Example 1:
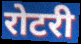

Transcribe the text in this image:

रोटरी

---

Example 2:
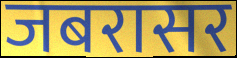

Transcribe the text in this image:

जबरासर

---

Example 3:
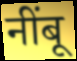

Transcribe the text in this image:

नींबू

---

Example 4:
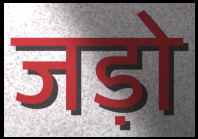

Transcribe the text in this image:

जड़ो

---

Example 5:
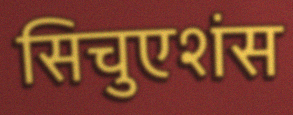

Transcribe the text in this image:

सिचुएशंस